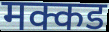
मक्कड